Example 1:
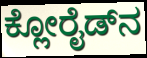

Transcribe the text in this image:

ಕ್ಲೋರೈಡ್‍ನ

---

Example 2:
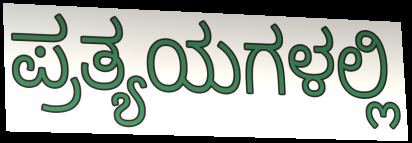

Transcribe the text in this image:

ಪ್ರತ್ಯಯಗಳಲ್ಲಿ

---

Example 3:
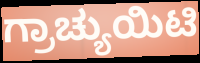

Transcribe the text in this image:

ಗ್ರಾಚ್ಯುಯಿಟಿ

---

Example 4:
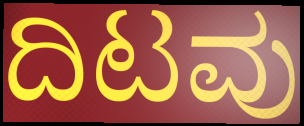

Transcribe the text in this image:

ದಿಟವು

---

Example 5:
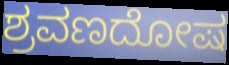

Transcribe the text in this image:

ಶ್ರವಣದೋಷ